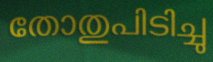
തോതുപിടിച്ചു